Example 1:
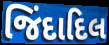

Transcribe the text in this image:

જિંદાદિલ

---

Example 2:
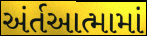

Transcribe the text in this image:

અંર્તઆત્મામાં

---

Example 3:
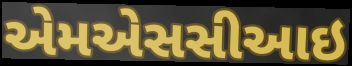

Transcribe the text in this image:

એમએસસીઆઇ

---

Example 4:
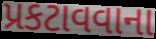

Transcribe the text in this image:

પ્રકટાવવાના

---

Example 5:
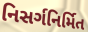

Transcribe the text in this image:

નિસર્ગનિર્મિત